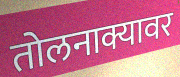
तोलनाक्यावर